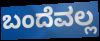
ಬಂದೆವಲ್ಲ